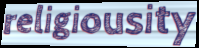
religiousity